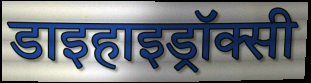
डाइहाइड्रॉक्सी